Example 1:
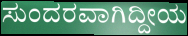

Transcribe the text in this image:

ಸುಂದರವಾಗಿದ್ದೀಯ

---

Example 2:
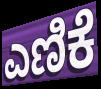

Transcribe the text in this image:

ಎಣಿಕೆ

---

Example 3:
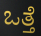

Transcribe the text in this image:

ಒತ್ತೆ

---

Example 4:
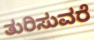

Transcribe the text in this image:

ತುರಿಸುವರೆ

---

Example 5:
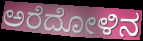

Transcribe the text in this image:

ಅರೆದೋಳಿನ